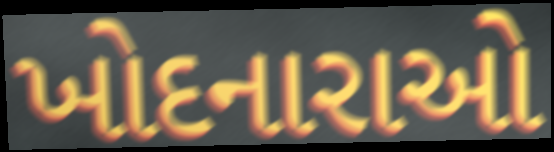
ખોદનારાઓ